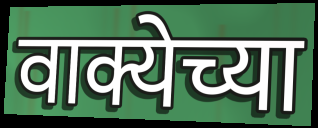
वाक्येच्या